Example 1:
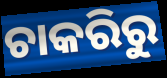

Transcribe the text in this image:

ଚାକରିରୁ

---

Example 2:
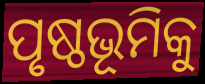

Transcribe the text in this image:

ପୃଷ୍ଠଭୂମିକୁ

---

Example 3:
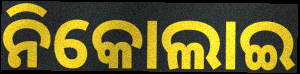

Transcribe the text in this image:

ନିକୋଲାଇ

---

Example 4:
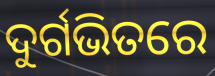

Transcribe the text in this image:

ଦୁର୍ଗଭିତରେ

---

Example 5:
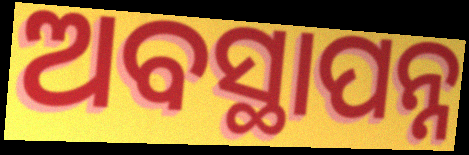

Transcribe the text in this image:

ଅବସ୍ଥାପନ୍ନ